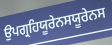
ਉਪਗ੍ਰਹਿਯੂਰੇਨਸਯੂਰੇਨਸ